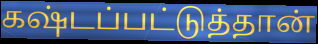
கஷ்டப்பட்டுத்தான்